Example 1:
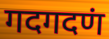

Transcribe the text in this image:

गदगदणं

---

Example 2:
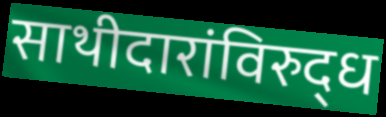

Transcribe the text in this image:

साथीदारांविरुद्ध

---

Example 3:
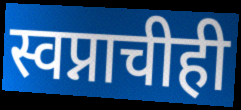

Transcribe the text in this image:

स्वप्नाचीही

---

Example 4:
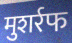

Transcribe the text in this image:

मुशर्रफ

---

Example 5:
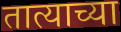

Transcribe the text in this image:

तात्याच्या